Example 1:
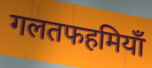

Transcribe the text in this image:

गलतफहमियाँ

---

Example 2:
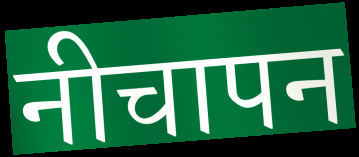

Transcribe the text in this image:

नीचापन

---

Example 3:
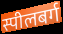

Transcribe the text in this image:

स्पीलबर्ग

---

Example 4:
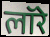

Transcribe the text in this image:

लॉरे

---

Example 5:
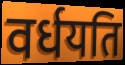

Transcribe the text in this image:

वर्धयति